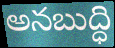
అనబుద్ధి